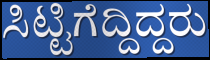
ಸಿಟ್ಟಿಗೆದ್ದಿದ್ದರು